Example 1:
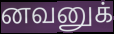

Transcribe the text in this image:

னவனுக்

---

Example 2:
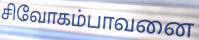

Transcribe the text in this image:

சிவோகம்பாவனை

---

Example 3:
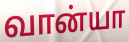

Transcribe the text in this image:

வான்யா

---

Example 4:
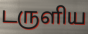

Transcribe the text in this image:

டருளிய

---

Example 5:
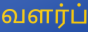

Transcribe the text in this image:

வளர்ப்